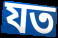
যত